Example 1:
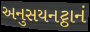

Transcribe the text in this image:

અનુસયનટ્ઠાનં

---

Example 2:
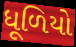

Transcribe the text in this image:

ધૂળિયો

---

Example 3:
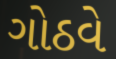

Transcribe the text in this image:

ગોઠવે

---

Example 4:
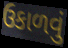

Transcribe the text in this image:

ઉકાળવું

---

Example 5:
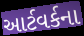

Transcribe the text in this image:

આર્ટવર્કના